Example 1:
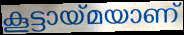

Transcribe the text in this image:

കൂട്ടായ്മയാണ്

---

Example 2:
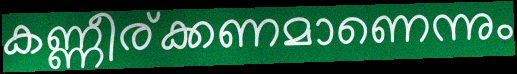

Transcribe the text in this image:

കണ്ണീര്ക്കണമാണെന്നും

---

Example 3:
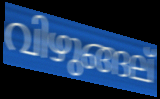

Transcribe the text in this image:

വിഴുങ്ങല്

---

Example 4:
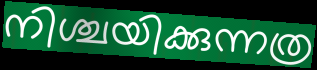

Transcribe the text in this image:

നിശ്ചയിക്കുന്നത്ര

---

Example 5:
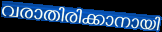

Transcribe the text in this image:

വരാതിരിക്കാനായി